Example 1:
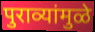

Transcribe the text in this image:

पुराव्यांमुळे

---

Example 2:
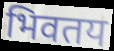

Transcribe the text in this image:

भिवतय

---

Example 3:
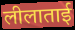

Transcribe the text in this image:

लीलाताई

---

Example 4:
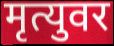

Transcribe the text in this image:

मृत्युवर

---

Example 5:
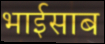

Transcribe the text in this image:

भाईसाब